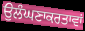
ਉਲੰਘਣਾਕਰਤਾਵਾਂ